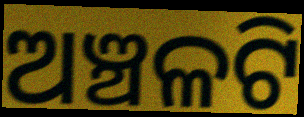
ଅଞ୍ଚଳଟି